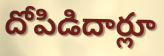
దోపిడిదార్లూ